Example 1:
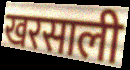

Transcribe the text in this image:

खरसाली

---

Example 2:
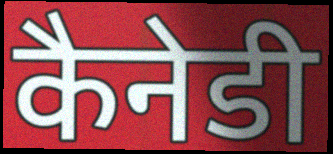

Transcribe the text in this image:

कैनेडी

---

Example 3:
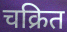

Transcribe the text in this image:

चक्रित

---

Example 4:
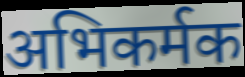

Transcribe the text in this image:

अभिकर्मक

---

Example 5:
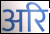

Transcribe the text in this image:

अरि